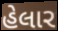
હેલાર